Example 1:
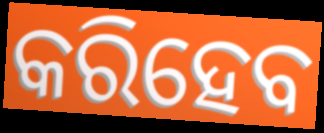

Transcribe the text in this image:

କରିହେବ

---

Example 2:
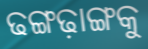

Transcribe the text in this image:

ଢଙ୍ଗଢ଼ାଙ୍ଗକୁ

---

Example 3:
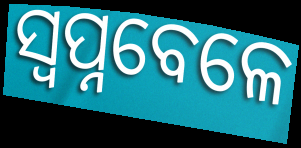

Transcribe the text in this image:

ସ୍ଵପ୍ନବେଳେ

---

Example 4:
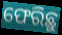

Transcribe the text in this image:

ଫେରିଛୁ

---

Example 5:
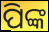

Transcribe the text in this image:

ପିଙ୍କ